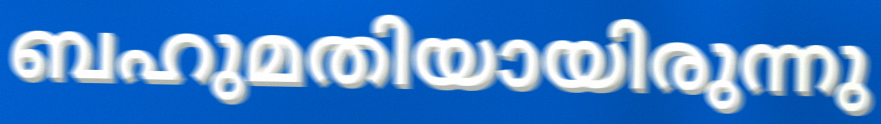
ബഹുമതിയായിരുന്നു